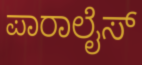
ಪಾರಾಲೈಸ್